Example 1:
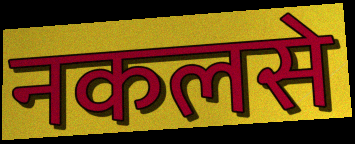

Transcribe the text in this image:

नकलसे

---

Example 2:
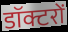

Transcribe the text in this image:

डॉक्टरों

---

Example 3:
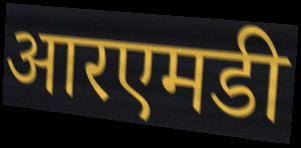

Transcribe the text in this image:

आरएमडी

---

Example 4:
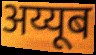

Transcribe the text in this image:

अय्यूब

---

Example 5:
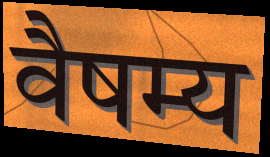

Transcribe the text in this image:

वैषम्‍य